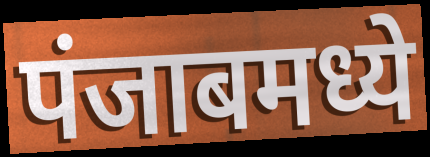
पंजाबमध्ये